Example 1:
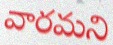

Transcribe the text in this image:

వారమని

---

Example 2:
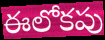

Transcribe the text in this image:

ఈలోకపు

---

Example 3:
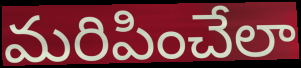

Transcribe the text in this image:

మరిపించేలా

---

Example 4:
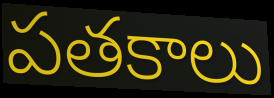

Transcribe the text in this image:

పతకాలు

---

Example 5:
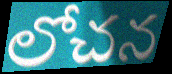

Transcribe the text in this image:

లోచన